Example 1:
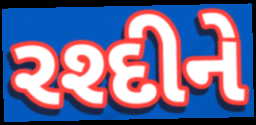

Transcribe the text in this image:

રશ્દીને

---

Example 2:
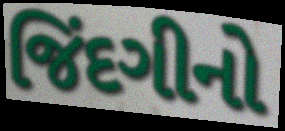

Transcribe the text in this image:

જિંદગીનો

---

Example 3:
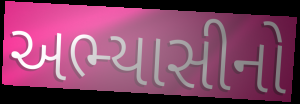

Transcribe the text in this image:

અભ્યાસીનો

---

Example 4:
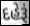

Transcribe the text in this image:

દહેરૂં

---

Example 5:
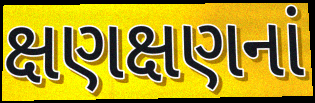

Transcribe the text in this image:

ક્ષણક્ષણનાં